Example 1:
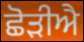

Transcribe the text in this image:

ਛੋੜੀਐ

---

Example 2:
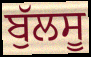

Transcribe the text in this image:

ਬੁੱਲਸੂ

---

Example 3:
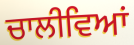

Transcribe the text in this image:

ਚਾਲੀਵਿਆਂ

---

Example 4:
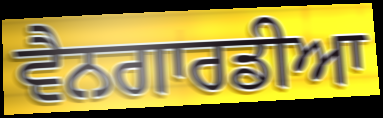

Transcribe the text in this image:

ਵੈਨਗਾਰਡੀਆ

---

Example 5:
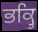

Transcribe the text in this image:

ਭਕ੍ਤਿ